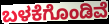
ಬಳಕೆಗೊಂಡಿವೆ